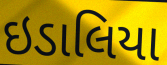
ઇડાલિયા